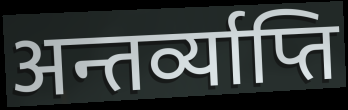
अन्तर्व्याप्ति